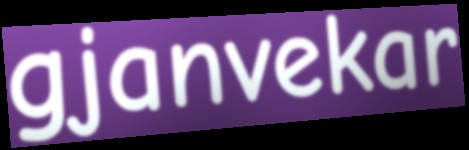
gjanvekar